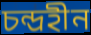
চন্দ্রহীন